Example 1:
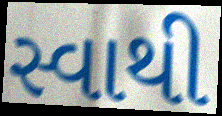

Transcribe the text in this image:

સ્વાથી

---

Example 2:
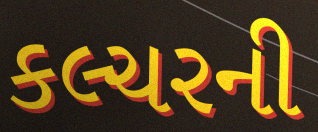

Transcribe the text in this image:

કલ્ચરની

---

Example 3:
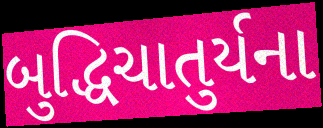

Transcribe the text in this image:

બુદ્ધિચાતુર્યના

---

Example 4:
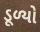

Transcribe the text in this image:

ડૂળ્યો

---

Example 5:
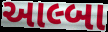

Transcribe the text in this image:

આલ્બા